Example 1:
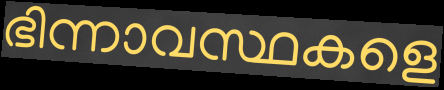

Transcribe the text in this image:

ഭിന്നാവസ്ഥകളെ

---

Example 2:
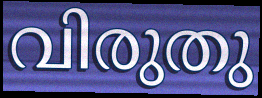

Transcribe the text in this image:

വിരുതു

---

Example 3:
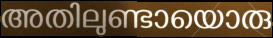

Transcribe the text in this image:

അതിലുണ്ടായൊരു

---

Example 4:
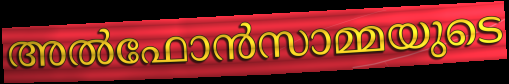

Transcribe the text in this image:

അൽഫോൻസാമ്മയുടെ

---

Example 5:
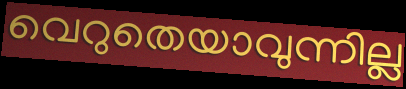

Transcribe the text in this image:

വെറുതെയാവുന്നില്ല